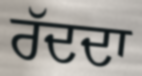
ਰੱਦਦਾ